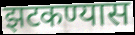
झटकण्यास